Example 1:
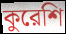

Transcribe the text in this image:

কুরেশি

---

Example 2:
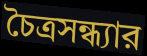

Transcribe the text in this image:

চৈত্রসন্ধ্যার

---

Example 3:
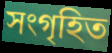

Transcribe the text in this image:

সংগৃহিত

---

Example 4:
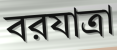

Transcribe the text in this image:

বরযাত্রা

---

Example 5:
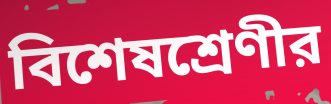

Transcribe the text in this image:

বিশেষশ্রেণীর